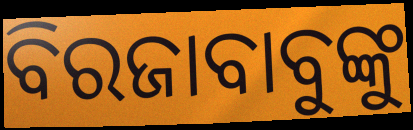
ବିରଜାବାବୁଙ୍କୁ